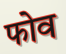
फोव